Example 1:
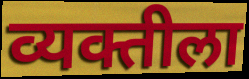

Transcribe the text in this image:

व्यक्तीला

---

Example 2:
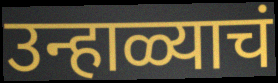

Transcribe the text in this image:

उन्हाळ्याचं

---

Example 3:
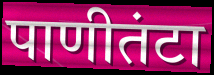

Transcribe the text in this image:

पाणीतंटा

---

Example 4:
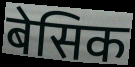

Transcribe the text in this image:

बेसिक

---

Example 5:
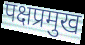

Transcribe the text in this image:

पक्षप्रमुख